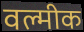
वल्मीक